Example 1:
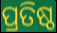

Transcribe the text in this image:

ପ୍ରତିଷ୍ଠ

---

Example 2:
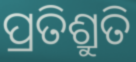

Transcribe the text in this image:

ପ୍ରତିଶ୍ରୁତି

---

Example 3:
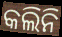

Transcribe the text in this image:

କଲିନି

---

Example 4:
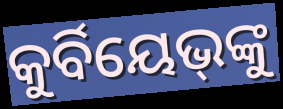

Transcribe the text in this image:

କୁର୍ବିୟେଭ୍‌ଙ୍କୁ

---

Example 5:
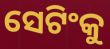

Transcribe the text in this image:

ସେଟିଂକୁ